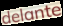
delante